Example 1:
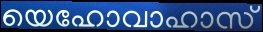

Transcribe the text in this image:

യെഹോവാഹാസ്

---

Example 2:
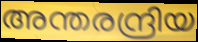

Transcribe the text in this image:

അന്തരന്ദ്രിയ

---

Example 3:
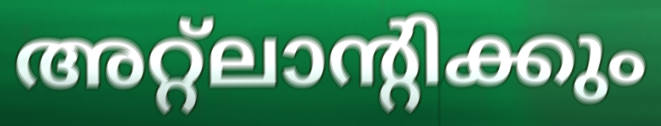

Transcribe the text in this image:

അറ്റ്ലാന്റിക്കും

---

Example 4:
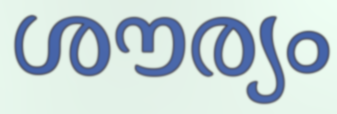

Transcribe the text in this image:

ശൗര്യം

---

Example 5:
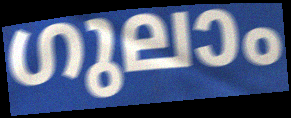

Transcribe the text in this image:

ഗുലാം